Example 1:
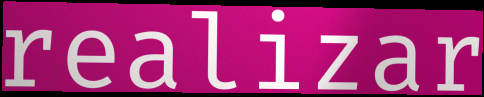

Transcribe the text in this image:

realizar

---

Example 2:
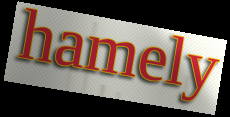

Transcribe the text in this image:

hamely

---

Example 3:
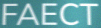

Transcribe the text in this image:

FAECT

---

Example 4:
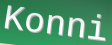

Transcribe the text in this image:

Konni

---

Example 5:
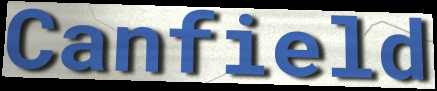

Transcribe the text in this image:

Canfield